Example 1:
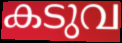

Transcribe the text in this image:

കടുവ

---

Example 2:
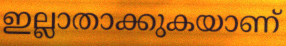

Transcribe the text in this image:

ഇല്ലാതാക്കുകയാണ്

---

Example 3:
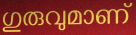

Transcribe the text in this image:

ഗുരുവുമാണ്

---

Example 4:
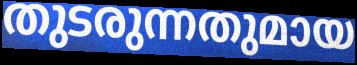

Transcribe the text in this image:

തുടരുന്നതുമായ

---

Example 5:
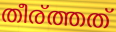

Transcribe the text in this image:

തീര്ത്തത്